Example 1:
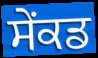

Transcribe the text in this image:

ਸੇਂਕਡ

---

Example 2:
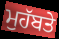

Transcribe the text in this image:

ਮੁਹੱਬਤੇ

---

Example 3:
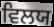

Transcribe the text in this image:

ਵਿਲਯ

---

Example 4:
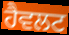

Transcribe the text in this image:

ਹੈਵਲਟ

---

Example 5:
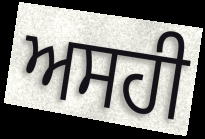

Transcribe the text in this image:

ਅਸਹੀ